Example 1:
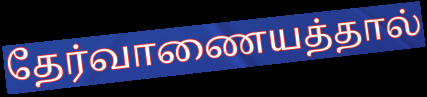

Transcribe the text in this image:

தேர்வாணையத்தால்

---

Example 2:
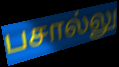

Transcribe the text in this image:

பசால்லு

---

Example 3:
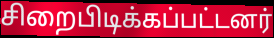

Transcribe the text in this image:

சிறைபிடிக்கப்பட்டனர்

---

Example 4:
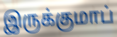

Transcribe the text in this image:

இருக்குமாப்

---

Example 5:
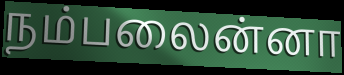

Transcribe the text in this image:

நம்பலைன்னா